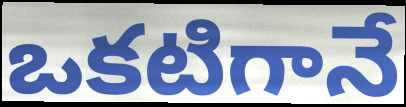
ఒకటిగానే